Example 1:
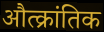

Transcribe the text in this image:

औत्क्रांतिक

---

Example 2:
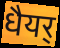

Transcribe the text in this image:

धैयर्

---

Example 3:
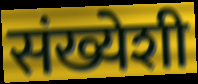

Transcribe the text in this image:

संख्येशी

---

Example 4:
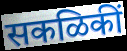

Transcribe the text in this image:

सकळिकीं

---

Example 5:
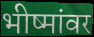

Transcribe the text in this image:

भीष्मांवर